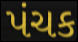
પંચક